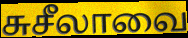
சுசீலாவை